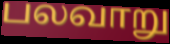
பலவாறு